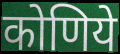
कोणिये